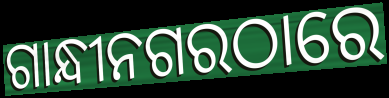
ଗାନ୍ଧୀନଗରଠାରେ